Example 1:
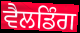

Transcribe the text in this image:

ਵੈਲਡਿੰਗ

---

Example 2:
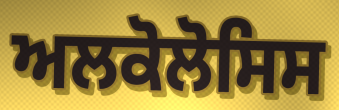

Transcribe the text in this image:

ਅਲਕੋਲੋਸਿਸ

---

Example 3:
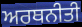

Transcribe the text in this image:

ਅਰਥਨੀਤੀ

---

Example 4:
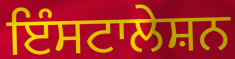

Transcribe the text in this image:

ਇੰਸਟਾਲੇਸ਼ਨ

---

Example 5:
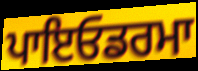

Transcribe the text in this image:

ਪਾਇਓਡਰਮਾ